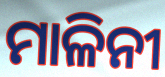
ମାଳିନୀ